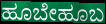
ಹೂಬೇಹೂಬ